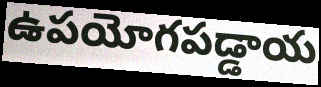
ఉపయోగపడ్డాయ